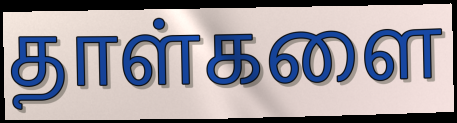
தாள்களை